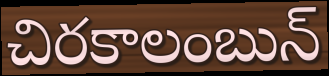
చిరకాలంబున్